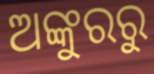
ଅଙ୍କୁରରୁ